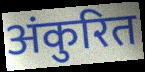
अंकुरित